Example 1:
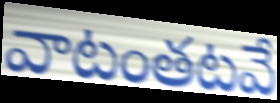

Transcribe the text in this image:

వాటంతటవే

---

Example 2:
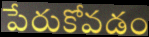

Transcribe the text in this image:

పేరుకోవడం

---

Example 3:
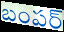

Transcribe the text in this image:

బంపర్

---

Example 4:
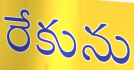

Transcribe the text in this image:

రేకును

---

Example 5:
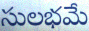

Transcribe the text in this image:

సులభమే